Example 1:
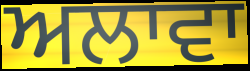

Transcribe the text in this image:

ਅਲਾਵਾ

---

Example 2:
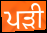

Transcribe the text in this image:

ਪਡ਼ੀ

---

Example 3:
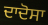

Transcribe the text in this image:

ਦਾਦੋਸਾ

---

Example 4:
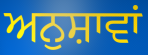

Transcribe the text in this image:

ਅਨੁਸ਼ਾਵਾਂ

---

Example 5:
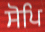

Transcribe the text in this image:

ਸੋਪਿ